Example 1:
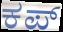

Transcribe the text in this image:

ಕಪ್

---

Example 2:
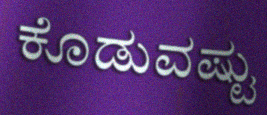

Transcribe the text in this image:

ಕೊಡುವಷ್ಟು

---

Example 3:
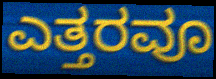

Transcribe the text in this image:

ಎತ್ತರವೂ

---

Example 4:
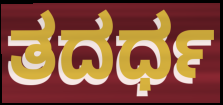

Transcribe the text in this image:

ತದರ್ಧ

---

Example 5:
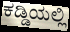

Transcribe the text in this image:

ಕಡ್ಡಿಯಲ್ಲಿ